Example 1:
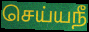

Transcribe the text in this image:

செய்யநீ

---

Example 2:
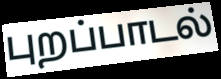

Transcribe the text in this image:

புறப்பாடல்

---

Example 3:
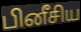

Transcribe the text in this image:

பினீசிய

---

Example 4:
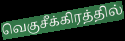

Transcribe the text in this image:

வெகுசீக்கிரத்தில்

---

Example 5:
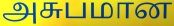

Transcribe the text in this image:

அசுபமான